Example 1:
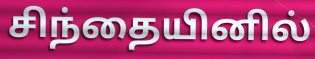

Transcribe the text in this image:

சிந்தையினில்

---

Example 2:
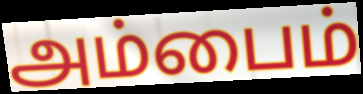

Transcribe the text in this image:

அம்பைம்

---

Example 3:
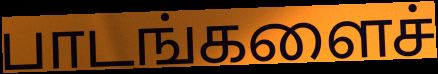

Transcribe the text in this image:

பாடங்களைச்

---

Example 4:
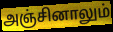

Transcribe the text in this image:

அஞ்சினாலும்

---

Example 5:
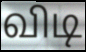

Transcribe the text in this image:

விடி